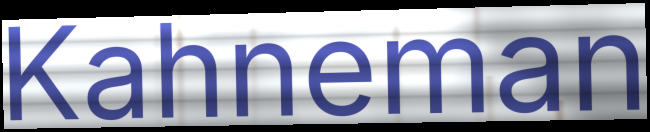
Kahneman